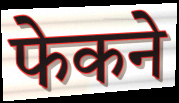
फेकने